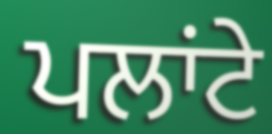
ਪਲਾਂਟੇ